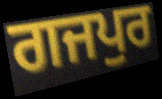
ਗਜਪੁਰ